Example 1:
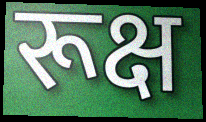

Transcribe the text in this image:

रूक्ष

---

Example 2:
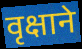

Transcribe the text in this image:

वृक्षाने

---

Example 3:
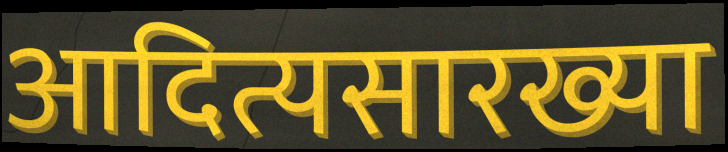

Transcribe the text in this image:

आदित्यसारख्या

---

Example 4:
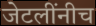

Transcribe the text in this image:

जेटलींनीच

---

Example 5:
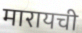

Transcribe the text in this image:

मारायची